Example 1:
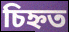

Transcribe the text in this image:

চিহ্নত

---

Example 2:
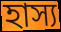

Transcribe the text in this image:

হাস্য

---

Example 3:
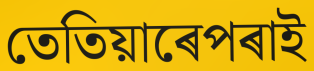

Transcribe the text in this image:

তেতিয়াৰেপৰাই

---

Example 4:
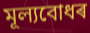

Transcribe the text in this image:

মূল্যবোধৰ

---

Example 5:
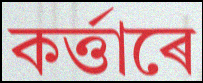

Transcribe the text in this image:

কৰ্ত্তাৰে